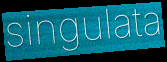
singulata